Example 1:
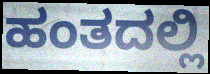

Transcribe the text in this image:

ಹಂತದಲ್ಲಿ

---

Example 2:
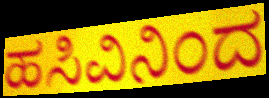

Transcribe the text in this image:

ಹಸಿವಿನಿಂದ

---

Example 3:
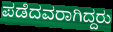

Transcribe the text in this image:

ಪಡೆದವರಾಗಿದ್ದರು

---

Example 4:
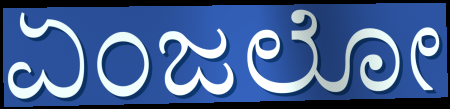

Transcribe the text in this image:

ಏಂಜಲೋ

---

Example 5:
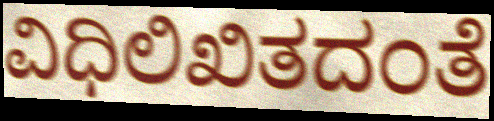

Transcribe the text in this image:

ವಿಧಿಲಿಖಿತದಂತೆ